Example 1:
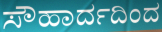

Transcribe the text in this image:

ಸೌಹಾರ್ದದಿಂದ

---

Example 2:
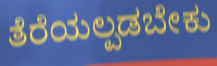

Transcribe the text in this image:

ತೆರೆಯಲ್ಪಡಬೇಕು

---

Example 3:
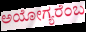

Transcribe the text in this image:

ಅಯೋಗ್ಯರೆಂಬ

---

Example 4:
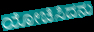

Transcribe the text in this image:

ಯೋಚಿಸಿದನು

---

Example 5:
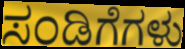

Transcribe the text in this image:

ಸಂಡಿಗೆಗಳು